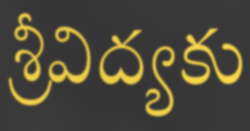
శ్రీవిద్యకు